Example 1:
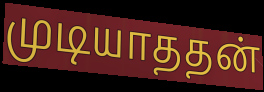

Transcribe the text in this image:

முடியாததன்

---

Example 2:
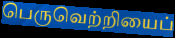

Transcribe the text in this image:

பெருவெற்றியைப்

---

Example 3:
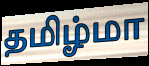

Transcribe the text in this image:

தமிழ்மா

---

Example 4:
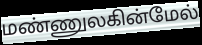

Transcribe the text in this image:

மண்ணுலகின்மேல்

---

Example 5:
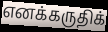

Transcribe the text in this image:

எனக்கருதிக்